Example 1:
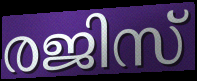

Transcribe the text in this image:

രജിസ്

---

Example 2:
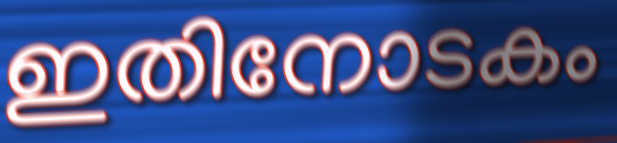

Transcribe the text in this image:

ഇതിനോടകം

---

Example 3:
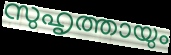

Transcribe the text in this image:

സുഹൃത്തായും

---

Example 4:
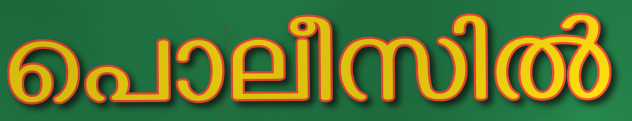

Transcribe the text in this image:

പൊലീസിൽ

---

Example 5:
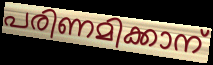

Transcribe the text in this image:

പരിണമിക്കാന്